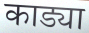
काड्या